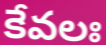
కేవలః